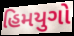
હિમયુગો